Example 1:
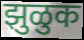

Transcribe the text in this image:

झुळुक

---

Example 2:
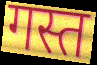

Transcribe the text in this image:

गस्त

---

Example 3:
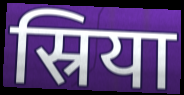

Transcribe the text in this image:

स्रिया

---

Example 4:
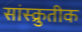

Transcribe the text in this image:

सांस्क्रुतीक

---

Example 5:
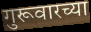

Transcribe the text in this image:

गुरूवारच्या